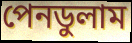
পেনডুলাম